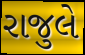
રાજુલે